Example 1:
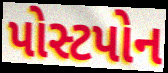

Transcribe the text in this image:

પોસ્ટપોન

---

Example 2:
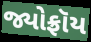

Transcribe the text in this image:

જ્યોફ્રૉય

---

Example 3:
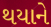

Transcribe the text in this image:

થયાને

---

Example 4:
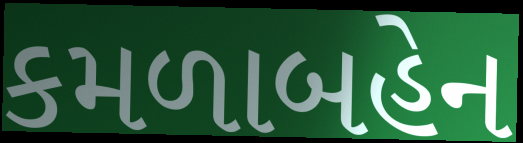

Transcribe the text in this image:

કમળાબહેન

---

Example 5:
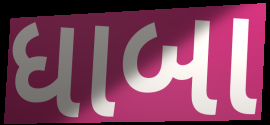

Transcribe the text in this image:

ધાબા